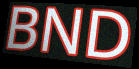
BND